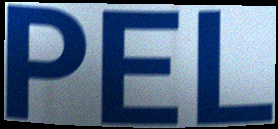
PEL